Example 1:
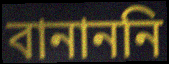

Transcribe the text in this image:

বানাননি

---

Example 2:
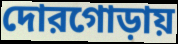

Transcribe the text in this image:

দোরগোড়ায়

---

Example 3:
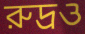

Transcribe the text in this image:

রুদ্রও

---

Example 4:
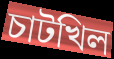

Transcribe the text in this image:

চাটখিল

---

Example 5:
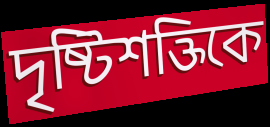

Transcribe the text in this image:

দৃষ্টিশক্তিকে